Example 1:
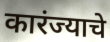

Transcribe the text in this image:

कारंज्याचे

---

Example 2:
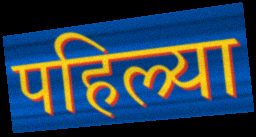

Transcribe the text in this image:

पहिल्या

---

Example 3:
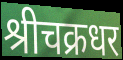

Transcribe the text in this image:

श्रीचक्रधर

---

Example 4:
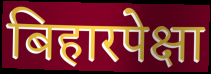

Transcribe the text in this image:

बिहारपेक्षा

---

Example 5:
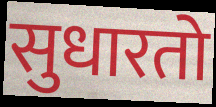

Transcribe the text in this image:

सुधारतो